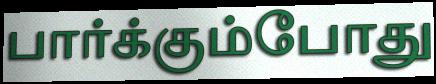
பார்க்கும்போது